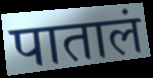
पातालं